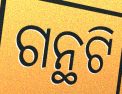
ଗନ୍ଥଟି